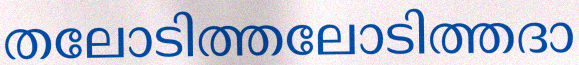
തലോടിത്തലോടിത്തദാ